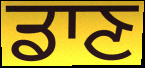
ਡਾਣ